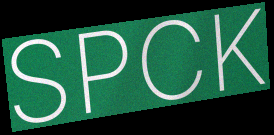
SPCK